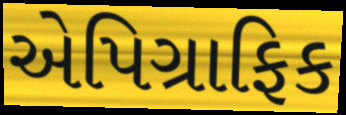
એપિગ્રાફિક